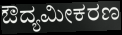
ಔದ್ಯಮೀಕರಣ